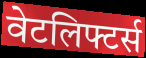
वेटलिफ्टर्स